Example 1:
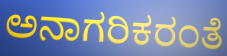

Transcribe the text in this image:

ಅನಾಗರಿಕರಂತೆ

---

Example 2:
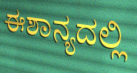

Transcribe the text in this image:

ಈಶಾನ್ಯದಲ್ಲಿ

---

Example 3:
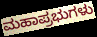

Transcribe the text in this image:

ಮಹಾಪ್ರಭುಗಳು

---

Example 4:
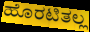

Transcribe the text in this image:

ಹೊರಟಿತಲ್ಲ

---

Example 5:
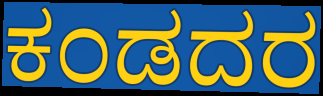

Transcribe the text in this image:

ಕಂಡದರ